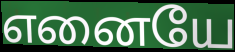
எனையே